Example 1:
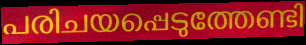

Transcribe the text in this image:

പരിചയപ്പെടുത്തേണ്ടി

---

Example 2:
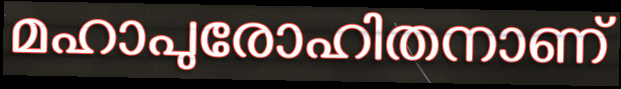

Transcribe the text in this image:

മഹാപുരോഹിതനാണ്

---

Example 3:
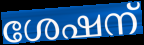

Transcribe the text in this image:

ശേഷന്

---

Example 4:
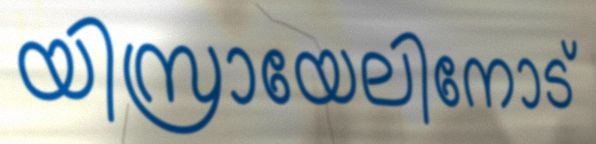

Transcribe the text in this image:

യിസ്രായേലിനോട്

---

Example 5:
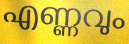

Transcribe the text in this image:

എണ്ണവും